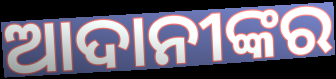
ଆଦାନୀଙ୍କର